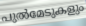
പുൽമേടുകളും